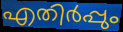
എതിർപ്പും